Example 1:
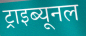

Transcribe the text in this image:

ट्राइब्यूनल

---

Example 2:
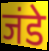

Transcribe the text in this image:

जंडे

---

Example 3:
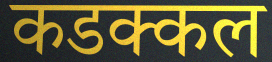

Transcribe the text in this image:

कडक्कल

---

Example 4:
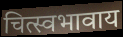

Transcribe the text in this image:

चित्स्वभावाय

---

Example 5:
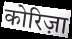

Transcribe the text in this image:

कोरिज़ा